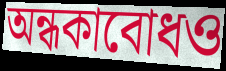
অন্ধকাবোধও